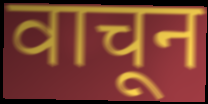
वाचून